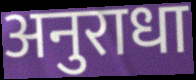
अनुराधा